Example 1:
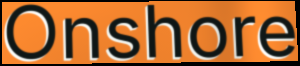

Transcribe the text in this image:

Onshore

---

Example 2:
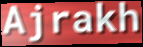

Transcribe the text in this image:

Ajrakh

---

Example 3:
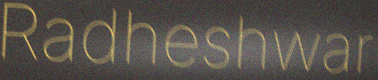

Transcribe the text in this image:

Radheshwar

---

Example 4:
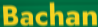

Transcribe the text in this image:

Bachan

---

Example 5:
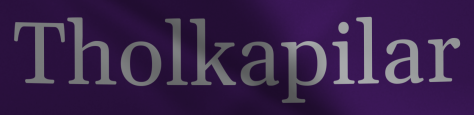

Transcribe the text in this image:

Tholkapilar